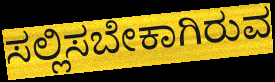
ಸಲ್ಲಿಸಬೇಕಾಗಿರುವ